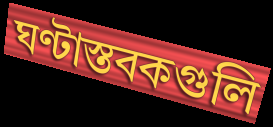
ঘণ্টাস্তবকগুলি